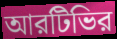
আরটিভির